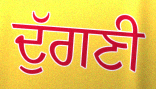
ਦੁੱਗਣੀ